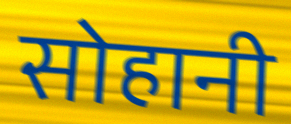
सोहानी